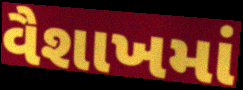
વૈશાખમાં